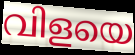
വിളയെ